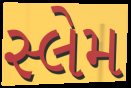
સ્લેમ